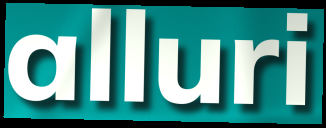
alluri